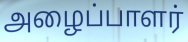
அழைப்பாளர்